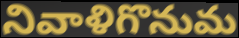
నివాళిగొనుమ